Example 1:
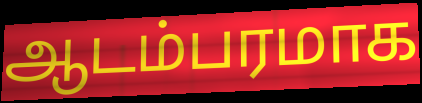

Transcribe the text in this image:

ஆடம்பரமாக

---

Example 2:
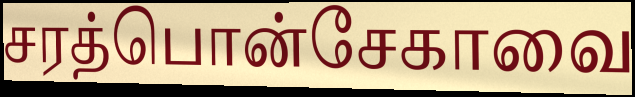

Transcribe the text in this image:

சரத்பொன்சேகாவை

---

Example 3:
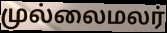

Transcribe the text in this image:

முல்லைமலர்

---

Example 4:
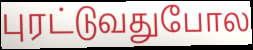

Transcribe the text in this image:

புரட்டுவதுபோல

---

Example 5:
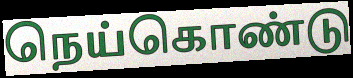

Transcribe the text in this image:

நெய்கொண்டு